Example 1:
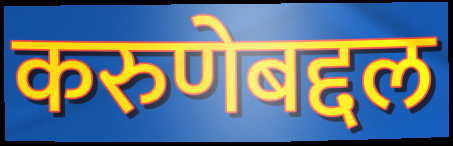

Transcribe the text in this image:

करुणेबद्दल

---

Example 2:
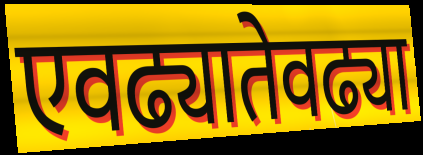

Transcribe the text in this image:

एवढ्यातेवढ्या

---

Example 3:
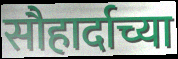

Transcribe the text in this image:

सौहार्दाच्या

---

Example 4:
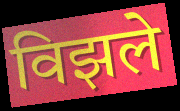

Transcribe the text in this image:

विझले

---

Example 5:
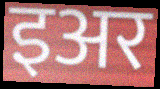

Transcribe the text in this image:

इअर